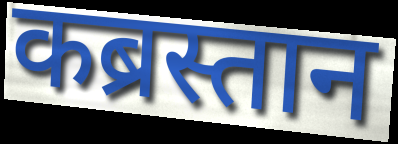
कब्रस्तान